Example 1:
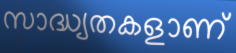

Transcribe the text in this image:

സാദ്ധ്യതകളാണ്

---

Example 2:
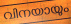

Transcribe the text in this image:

വിനയായും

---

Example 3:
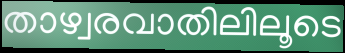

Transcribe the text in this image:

താഴ്വരവാതിലിലൂടെ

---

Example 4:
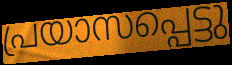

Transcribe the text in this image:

പ്രയാസപ്പെട്ടു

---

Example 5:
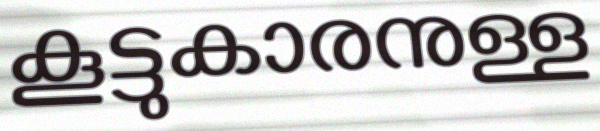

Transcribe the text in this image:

കൂട്ടുകാരനുള്ള